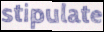
stipulate